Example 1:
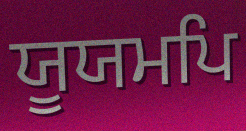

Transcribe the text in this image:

ਯੂਯਮਪਿ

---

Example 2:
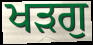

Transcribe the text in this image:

ਖੜਗੁ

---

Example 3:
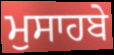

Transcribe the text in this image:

ਮੁਸਾਹਬੇ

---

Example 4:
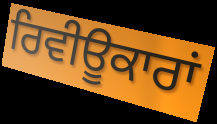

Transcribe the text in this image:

ਰਿਵੀਊਕਾਰਾਂ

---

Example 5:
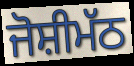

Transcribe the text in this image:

ਜੋਸ਼ੀਮੱਠ